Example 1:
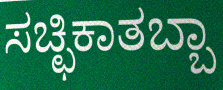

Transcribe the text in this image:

ಸಚ್ಛಿಕಾತಬ್ಬಾ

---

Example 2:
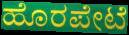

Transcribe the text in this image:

ಹೊರಪೇಟೆ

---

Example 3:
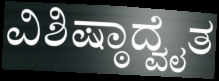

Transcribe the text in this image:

ವಿಶಿಷ್ಠಾದ್ವೈತ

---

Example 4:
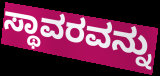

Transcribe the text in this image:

ಸ್ಥಾವರವನ್ನು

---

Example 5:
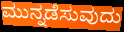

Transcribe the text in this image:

ಮುನ್ನಡೆಸುವುದು